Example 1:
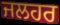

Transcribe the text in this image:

ਜਲਹਰ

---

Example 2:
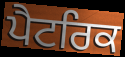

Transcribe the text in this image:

ਪੈਟਰਿਕ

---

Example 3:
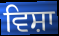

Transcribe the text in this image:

ਵਿਸ਼ਾ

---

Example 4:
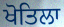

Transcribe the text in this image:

ਖੋਤਿਲਾ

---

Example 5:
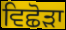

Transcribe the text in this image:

ਵਿਛੋੜਾ